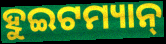
ହୁଇଟମ୍ୟାନ୍